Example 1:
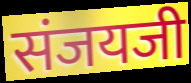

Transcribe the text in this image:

संजयजी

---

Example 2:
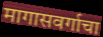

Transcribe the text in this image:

मागासवर्गाचा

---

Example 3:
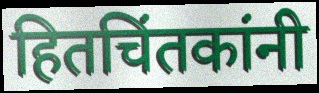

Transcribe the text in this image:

हितचिंतकांनी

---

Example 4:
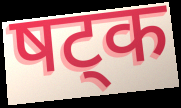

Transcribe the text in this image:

षट्क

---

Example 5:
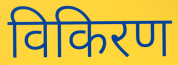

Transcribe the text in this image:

विकिरण